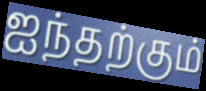
ஐந்தற்கும்